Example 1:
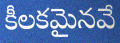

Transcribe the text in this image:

కీలకమైనవే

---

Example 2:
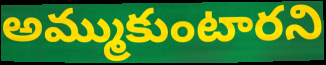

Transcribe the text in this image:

అమ్ముకుంటారని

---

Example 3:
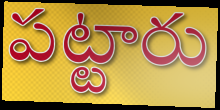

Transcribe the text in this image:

పట్టారు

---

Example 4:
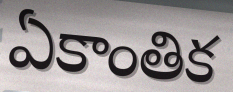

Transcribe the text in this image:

ఏకాంతిక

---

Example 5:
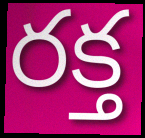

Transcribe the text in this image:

రక్త